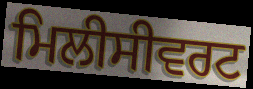
ਮਿਲੀਸੀਵਰਟ